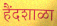
हैंदशाळा